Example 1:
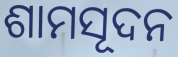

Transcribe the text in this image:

ଶାମସୂଦନ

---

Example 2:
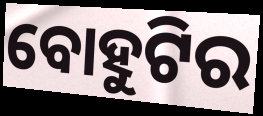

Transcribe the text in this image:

ବୋହୁଟିର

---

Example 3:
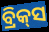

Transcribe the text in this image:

ବ୍ରିକ୍‌ସ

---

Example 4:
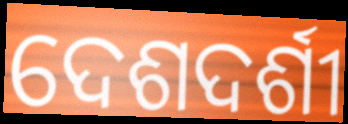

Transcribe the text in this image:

ଦେଶଦର୍ଶୀ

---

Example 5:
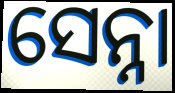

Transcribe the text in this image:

ସେନ୍ନା